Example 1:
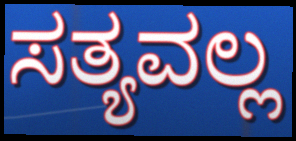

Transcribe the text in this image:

ಸತ್ಯವಲ್ಲ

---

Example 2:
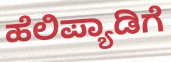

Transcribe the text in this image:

ಹೆಲಿಪ್ಯಾಡಿಗೆ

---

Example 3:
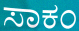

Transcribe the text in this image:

ಸಾಕಂ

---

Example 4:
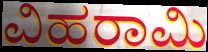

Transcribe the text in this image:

ವಿಹರಾಮಿ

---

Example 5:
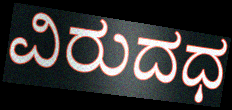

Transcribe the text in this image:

ವಿರುದಧ